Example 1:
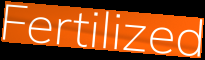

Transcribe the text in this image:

Fertilized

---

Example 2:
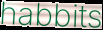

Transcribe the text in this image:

habbits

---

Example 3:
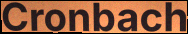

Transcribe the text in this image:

Cronbach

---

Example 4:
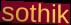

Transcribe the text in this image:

sothik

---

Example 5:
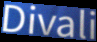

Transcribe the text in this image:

Divali